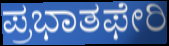
ಪ್ರಭಾತಫೇರಿ